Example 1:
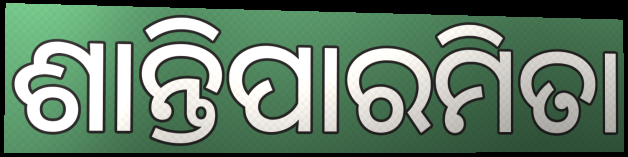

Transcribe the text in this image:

ଶାନ୍ତିପାରମିତା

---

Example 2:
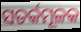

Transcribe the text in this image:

ସତର୍କମୂଳକ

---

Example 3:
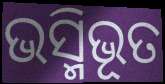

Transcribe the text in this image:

ଭସ୍ମିଭୂତ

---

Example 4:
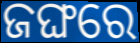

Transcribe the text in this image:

ଜଙ୍ଘରେ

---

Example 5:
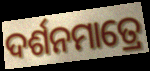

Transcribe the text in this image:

ଦର୍ଶନମାତ୍ରେ